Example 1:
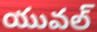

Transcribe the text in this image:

యువల్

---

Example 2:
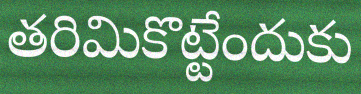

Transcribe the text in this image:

తరిమికొట్టేందుకు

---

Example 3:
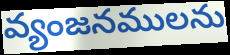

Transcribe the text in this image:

వ్యంజనములను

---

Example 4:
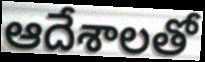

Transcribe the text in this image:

ఆదేశాలతో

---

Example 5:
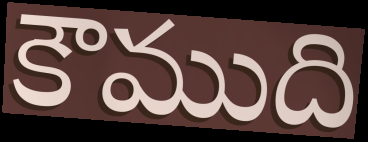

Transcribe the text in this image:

కౌముది